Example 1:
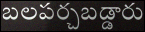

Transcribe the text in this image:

బలపర్చబడ్డారు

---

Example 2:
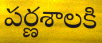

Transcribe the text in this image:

పర్ణశాలకి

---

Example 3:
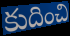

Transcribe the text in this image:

కుదించి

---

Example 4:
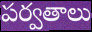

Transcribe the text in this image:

పర్వతాలు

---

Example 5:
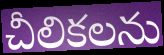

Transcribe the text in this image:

చీలికలను